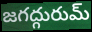
జగద్గురుమ్